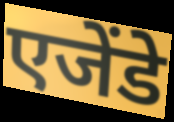
एजेंडे